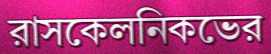
রাসকেলনিকভের